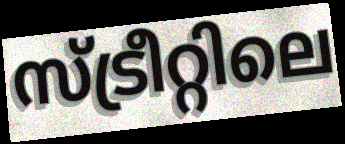
സ്ട്രീറ്റിലെ